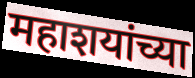
महाशयांच्या